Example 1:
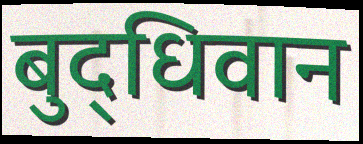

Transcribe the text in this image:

बुद्धिवान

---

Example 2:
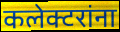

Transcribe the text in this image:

कलेक्टरांना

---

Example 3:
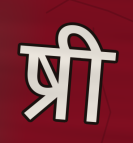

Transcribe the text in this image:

ष्री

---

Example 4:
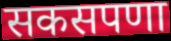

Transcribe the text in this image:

सकसपणा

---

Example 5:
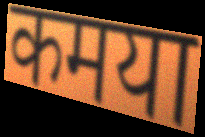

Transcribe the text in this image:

कमया